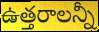
ఉత్తరాలన్నీ